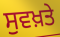
ਸੁਵਖ਼ਤੇ